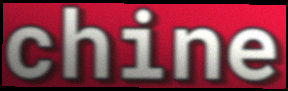
chine